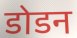
डोडन